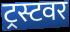
ट्रस्टवर